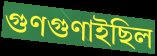
গুণগুণাইছিল